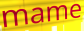
mame